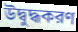
উদ্বুদ্ধকরণ